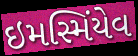
ઇમસ્મિંયેવ